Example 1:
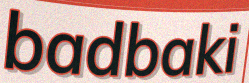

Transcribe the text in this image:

badbaki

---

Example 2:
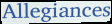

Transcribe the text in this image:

Allegiances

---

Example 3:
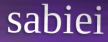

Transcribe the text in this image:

sabiei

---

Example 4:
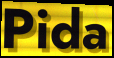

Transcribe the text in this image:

Pida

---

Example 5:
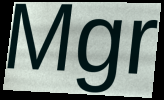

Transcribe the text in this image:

Mgr